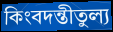
কিংবদন্তীতুল্য